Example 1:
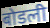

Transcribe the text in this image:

बोडली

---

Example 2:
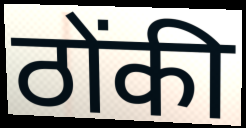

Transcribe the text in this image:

ठोंकी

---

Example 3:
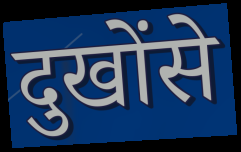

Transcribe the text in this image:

दुखोंसे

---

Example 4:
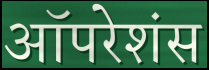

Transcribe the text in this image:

ऑपरेशंस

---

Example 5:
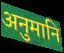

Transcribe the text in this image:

अनुमानि